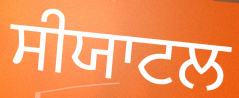
ਸੀਯਾਟਲ